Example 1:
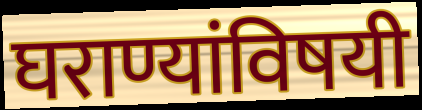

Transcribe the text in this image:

घराण्यांविषयी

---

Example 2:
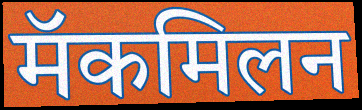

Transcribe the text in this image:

मॅकमिलन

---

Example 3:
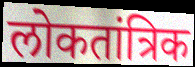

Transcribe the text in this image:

लोकतांत्रिक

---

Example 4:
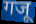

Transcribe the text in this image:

गजू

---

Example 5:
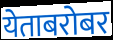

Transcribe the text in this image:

येताबरोबर